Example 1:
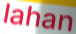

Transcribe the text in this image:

lahan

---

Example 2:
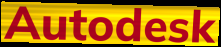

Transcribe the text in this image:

Autodesk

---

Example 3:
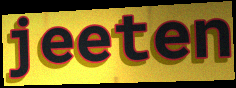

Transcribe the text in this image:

jeeten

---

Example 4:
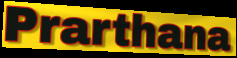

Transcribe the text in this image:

Prarthana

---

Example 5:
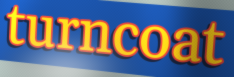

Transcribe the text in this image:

turncoat